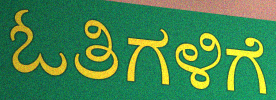
ಓತಿಗಳಿಗೆ